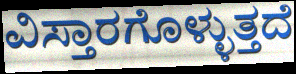
ವಿಸ್ತಾರಗೊಳ್ಳುತ್ತದೆ